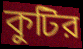
কুটির